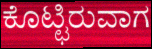
ಕೊಟ್ಟಿರುವಾಗ